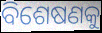
ବିଶେଷଣକୁ